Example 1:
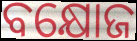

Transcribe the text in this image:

ବକ୍ଷୋଜ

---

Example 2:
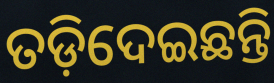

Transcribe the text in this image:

ତଡ଼ିଦେଇଛନ୍ତି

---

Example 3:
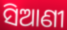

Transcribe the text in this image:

ସିଆଣୀ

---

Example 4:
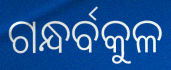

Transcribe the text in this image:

ଗନ୍ଧର୍ବକୁଳ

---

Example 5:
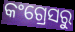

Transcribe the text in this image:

କଂଗ୍ରେସରୁ